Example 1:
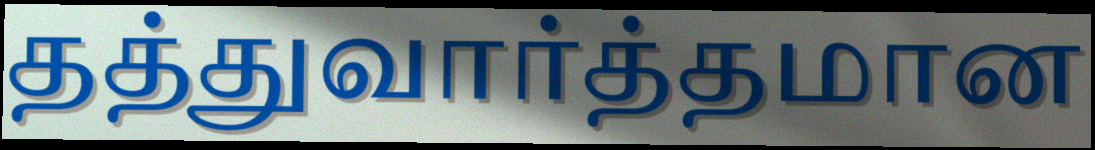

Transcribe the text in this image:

தத்துவார்த்தமான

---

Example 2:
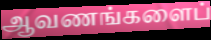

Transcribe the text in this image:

ஆவணங்களைப்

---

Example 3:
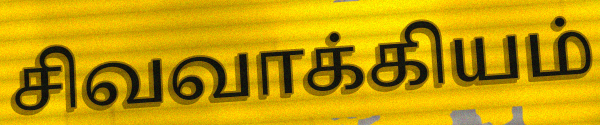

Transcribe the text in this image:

சிவவாக்கியம்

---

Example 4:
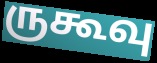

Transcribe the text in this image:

ருகூவு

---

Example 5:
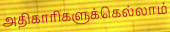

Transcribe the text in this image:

அதிகாரிகளுக்கெல்லாம்